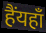
हैंयहाँ